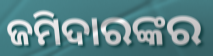
ଜମିଦାରଙ୍କର